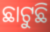
ଛାଟୁଛି